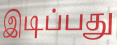
இடிப்பது